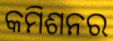
କମିଶନର